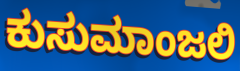
ಕುಸುಮಾಂಜಲಿ